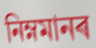
নিম্নমানৰ